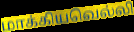
மாக்கியவெல்லி